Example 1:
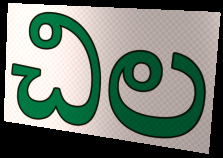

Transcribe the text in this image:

చిల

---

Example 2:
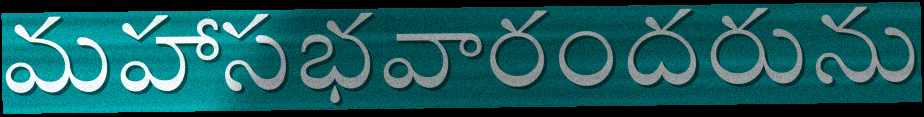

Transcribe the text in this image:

మహాసభవారందరును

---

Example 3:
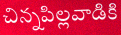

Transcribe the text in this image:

చిన్నపిల్లవాడికి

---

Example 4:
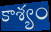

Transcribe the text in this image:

కాశ్యం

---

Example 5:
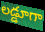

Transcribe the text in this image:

లడ్డూగా